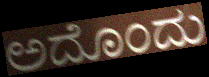
ಅದೊಂದು